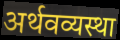
अर्थवव्यस्था